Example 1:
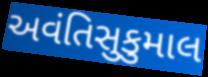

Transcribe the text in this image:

અવંતિસુકુમાલ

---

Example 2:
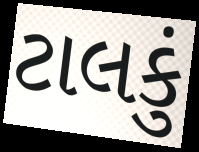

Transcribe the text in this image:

ટાલકું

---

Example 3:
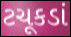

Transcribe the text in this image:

ટચૂકડાં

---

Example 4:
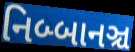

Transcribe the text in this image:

નિબ્બાનઞ્ચ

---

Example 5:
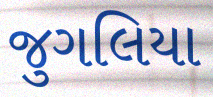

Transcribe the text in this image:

જુગલિયા